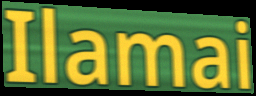
Ilamai